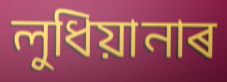
লুধিয়ানাৰ